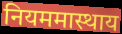
नियममास्थाय